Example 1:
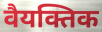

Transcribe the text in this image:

वैयक्तिक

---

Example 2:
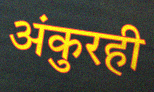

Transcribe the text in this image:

अंकुरही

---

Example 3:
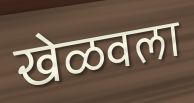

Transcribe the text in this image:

खेळवला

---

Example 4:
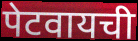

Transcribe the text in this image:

पेटवायची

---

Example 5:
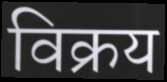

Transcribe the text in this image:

विक्रय